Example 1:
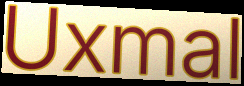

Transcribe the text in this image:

Uxmal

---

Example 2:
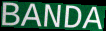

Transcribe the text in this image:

BANDA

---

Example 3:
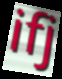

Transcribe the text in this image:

ifj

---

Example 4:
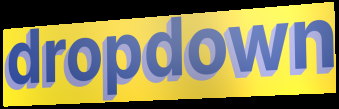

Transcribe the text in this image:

dropdown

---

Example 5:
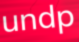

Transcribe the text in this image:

undp